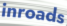
inroads